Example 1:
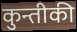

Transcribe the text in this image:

कुन्तीकी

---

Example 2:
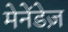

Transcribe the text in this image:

मेनेंडेज़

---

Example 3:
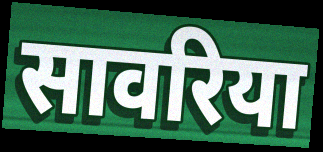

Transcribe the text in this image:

सावरिया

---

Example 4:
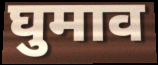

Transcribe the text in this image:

घुमाव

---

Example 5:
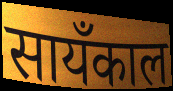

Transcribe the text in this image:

सायँकाल